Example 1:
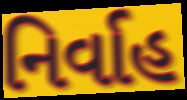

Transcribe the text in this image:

નિર્વાહ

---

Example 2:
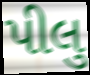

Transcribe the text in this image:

પીલુ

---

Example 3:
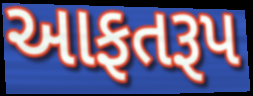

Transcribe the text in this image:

આફતરૂપ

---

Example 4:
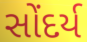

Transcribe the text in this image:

સોંદર્ય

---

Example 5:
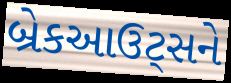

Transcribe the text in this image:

બ્રેકઆઉટ્સને